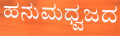
ಹನುಮಧ್ವಜದ